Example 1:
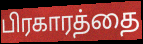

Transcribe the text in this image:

பிரகாரத்தை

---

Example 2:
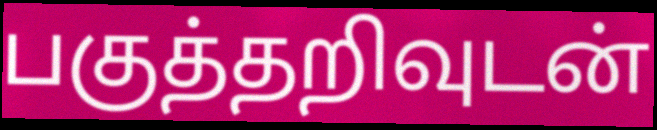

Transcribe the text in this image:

பகுத்தறிவுடன்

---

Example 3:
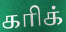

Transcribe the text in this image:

கரிக்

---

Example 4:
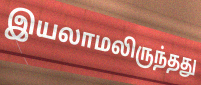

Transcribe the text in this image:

இயலாமலிருந்தது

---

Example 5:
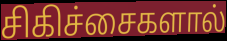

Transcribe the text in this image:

சிகிச்சைகளால்